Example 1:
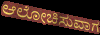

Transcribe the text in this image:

ಆಲೋಚಿಸುವಾಗ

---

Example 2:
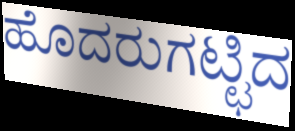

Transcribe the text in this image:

ಹೊದರುಗಟ್ಟಿದ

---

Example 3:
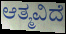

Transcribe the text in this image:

ಆತ್ಮವಿದೆ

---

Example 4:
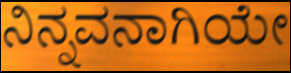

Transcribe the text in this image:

ನಿನ್ನವನಾಗಿಯೇ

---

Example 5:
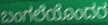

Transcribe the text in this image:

ಬಂಗಲೆಯೊಂದರ